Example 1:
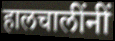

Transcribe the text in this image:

हालचालींनीं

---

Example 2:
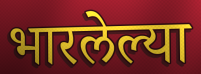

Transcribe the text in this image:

भारलेल्या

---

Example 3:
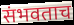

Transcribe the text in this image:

संभवताच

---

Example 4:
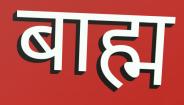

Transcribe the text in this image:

बाह्म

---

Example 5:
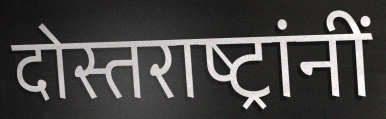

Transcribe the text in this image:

दोस्तराष्ट्रांनीं